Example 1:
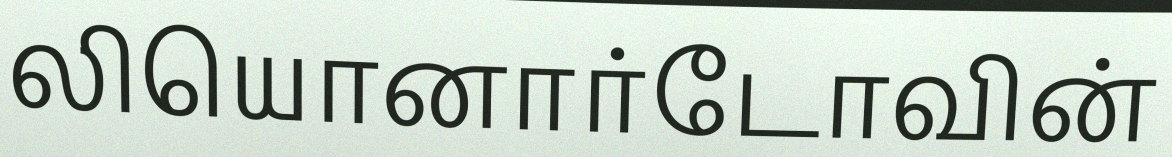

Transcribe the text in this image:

லியொனார்டோவின்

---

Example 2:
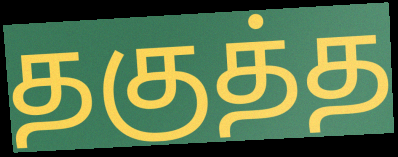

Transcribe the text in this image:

தகுத்த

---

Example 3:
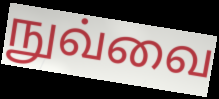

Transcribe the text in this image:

நுவ்வை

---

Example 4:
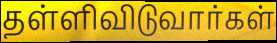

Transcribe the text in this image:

தள்ளிவிடுவார்கள்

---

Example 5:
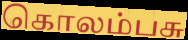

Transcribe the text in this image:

கொலம்பசு